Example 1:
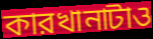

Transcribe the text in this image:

কারখানাটাও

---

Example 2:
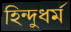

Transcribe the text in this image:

হিন্দুধর্ম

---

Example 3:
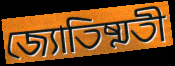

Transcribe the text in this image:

জ্যোতিষ্মতী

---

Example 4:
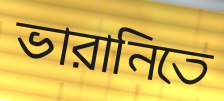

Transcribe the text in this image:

ভারানিতে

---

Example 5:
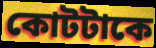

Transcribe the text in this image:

কোটটাকে